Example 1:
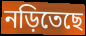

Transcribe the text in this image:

নড়িতেছে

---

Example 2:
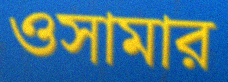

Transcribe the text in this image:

ওসামার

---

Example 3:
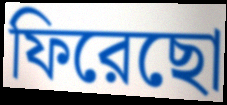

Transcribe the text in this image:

ফিরেছো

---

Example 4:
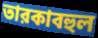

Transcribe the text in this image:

তারকাবহুল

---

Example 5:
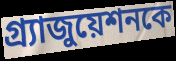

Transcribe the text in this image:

গ্র্যাজুয়েশনকে